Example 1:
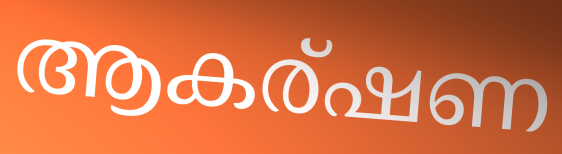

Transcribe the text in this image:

ആകര്ഷണ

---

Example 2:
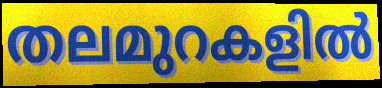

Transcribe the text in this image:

തലമുറകളിൽ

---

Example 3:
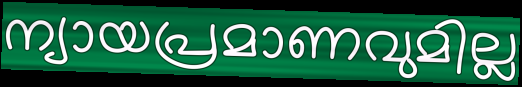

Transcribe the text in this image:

ന്യായപ്രമാണവുമില്ല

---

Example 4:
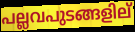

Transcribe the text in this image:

പല്ലവപുടങ്ങളില്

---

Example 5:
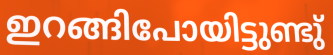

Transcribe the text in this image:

ഇറങ്ങിപോയിട്ടുണ്ടു്